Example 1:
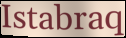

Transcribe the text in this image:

Istabraq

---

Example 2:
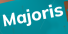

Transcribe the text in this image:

Majoris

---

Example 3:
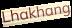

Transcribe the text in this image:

Lhakhang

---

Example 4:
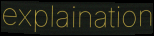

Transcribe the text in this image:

explaination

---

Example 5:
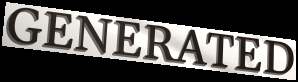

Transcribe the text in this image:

GENERATED